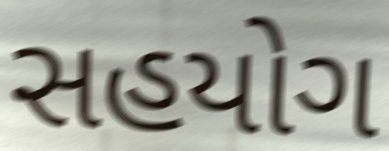
સહયોગ